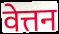
वेत्तन